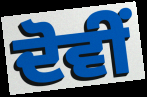
ਦੋਵੀਂ